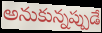
అనుకున్నప్పుడే